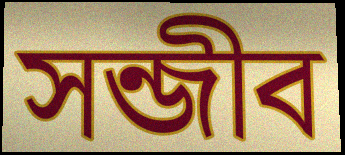
সন্জীব